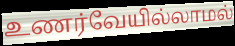
உணர்வேயில்லாமல்